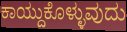
ಕಾಯ್ದುಕೊಳ್ಳುವುದು